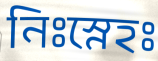
নিঃস্নেহঃ